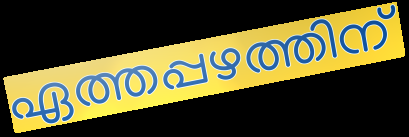
ഏത്തപ്പഴത്തിന്